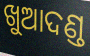
ଖୁଆଦଣ୍ଡ